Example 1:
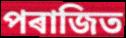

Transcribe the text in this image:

পৰাজিত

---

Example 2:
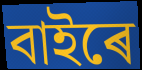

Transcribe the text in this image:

বাইৰে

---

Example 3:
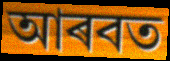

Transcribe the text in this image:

আৰবত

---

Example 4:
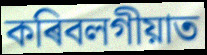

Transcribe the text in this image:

কৰিবলগীয়াত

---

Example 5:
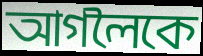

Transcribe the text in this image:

আগলৈকে